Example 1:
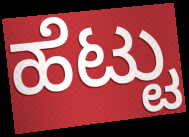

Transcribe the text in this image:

ಹೆಟ್ಟು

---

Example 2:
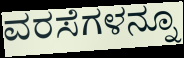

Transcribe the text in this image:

ವರಸೆಗಳನ್ನೂ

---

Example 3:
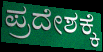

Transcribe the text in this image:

ಪ್ರದೇಶಕ್ಕೆ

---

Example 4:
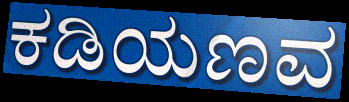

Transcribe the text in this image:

ಕಡಿಯಣವ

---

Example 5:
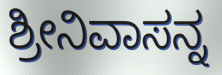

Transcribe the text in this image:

ಶ್ರೀನಿವಾಸನ್ನ